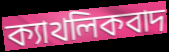
ক্যাথলিকবাদ